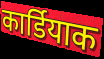
कार्डियाक